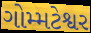
ગોમ્મટેશ્વર